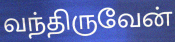
வந்திருவேன்